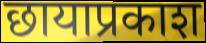
छायाप्रकाश